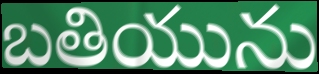
బతియును